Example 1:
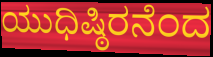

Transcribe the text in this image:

ಯುಧಿಷ್ಠಿರನೆಂದ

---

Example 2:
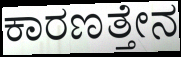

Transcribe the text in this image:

ಕಾರಣತ್ತೇನ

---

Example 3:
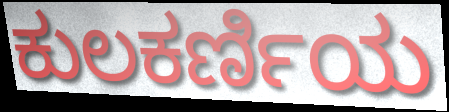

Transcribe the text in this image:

ಕುಲಕರ್ಣಿಯ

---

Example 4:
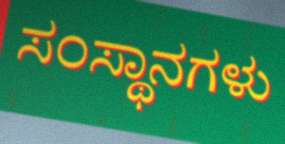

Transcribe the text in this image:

ಸಂಸ್ಥಾನಗಳು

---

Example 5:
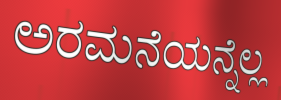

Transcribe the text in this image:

ಅರಮನೆಯನ್ನೆಲ್ಲ